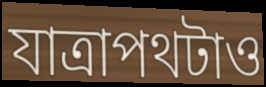
যাত্রাপথটাও